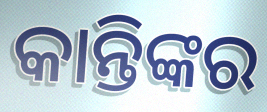
କାନ୍ତିଙ୍କର